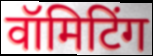
वॉमिटिंग